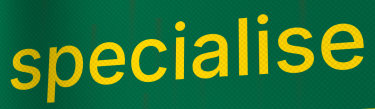
specialise